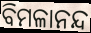
ବିମଳାନନ୍ଦ